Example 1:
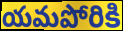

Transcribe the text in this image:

యమపోరికి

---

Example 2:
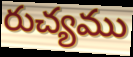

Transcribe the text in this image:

రుచ్యము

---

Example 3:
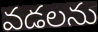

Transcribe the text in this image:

వడలను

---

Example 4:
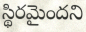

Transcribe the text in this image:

స్థిరమైందని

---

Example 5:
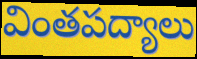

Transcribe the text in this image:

వింతపద్యాలు